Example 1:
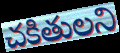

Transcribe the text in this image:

చకితులని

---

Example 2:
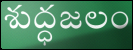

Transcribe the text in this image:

శుద్ధజలం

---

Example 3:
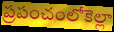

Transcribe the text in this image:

ప్రపంచంలోకెల్లా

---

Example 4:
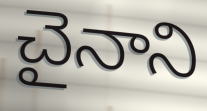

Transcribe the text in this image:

చైనాని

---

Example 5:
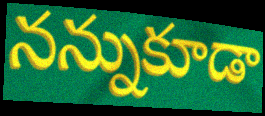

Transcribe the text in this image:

నన్నుకూడా